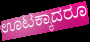
ಊಟಕ್ಕಾದರೂ